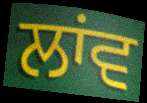
ਲਾਂਵ